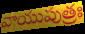
వాయుపుత్రః